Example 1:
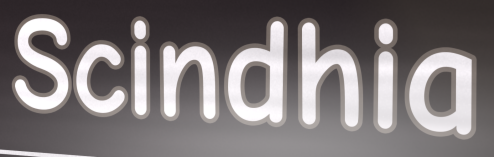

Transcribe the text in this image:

Scindhia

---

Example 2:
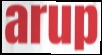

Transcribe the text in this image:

arup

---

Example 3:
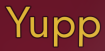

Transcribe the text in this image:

Yupp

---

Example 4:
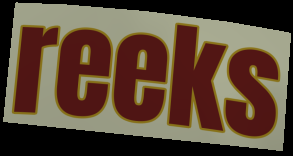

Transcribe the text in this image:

reeks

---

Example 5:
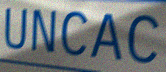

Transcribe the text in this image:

UNCAC